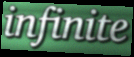
infinite